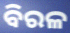
ବିରଳ